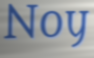
Noy